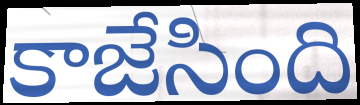
కాజేసింది